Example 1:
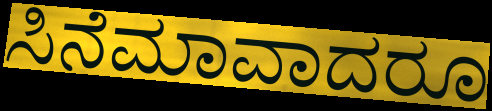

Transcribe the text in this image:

ಸಿನೆಮಾವಾದರೂ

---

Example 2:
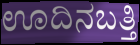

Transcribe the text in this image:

ಊದಿನಬತ್ತಿ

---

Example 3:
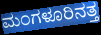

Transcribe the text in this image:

ಮಂಗಳೂರಿನತ್ತ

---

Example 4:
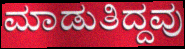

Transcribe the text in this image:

ಮಾಡುತಿದ್ದವು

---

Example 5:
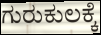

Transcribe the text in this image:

ಗುರುಕುಲಕ್ಕೆ